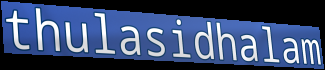
thulasidhalam